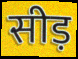
सीड़